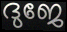
ദുജേ